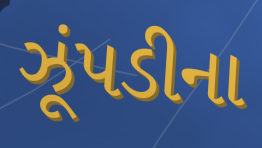
ઝૂંપડીના